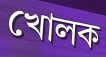
খোলক